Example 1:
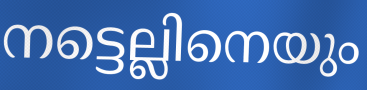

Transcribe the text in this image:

നട്ടെല്ലിനെയും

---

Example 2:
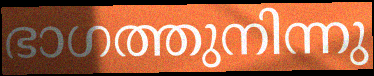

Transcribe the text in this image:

ഭാഗത്തുനിന്നു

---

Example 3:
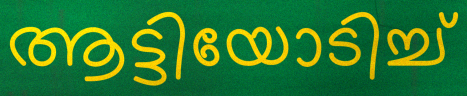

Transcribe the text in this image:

ആട്ടിയോടിച്ച്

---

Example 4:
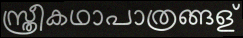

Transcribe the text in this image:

സ്ത്രീകഥാപാത്രങ്ങള്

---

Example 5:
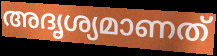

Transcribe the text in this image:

അദൃശ്യമാണത്